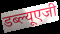
डब्ल्यूएजी